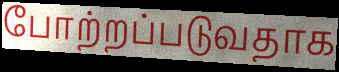
போற்றப்படுவதாக